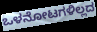
ಒಳನೋಟಗಳಿಲ್ಲದ